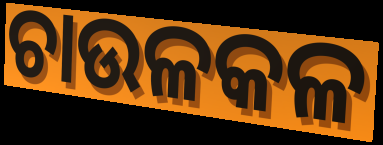
ଚାଉଳକଳ